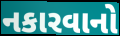
નકારવાનો